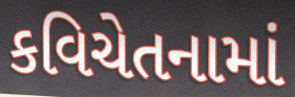
કવિચેતનામાં